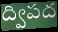
ద్విపద